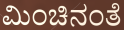
ಮಿಂಚಿನಂತೆ